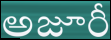
అజూరీ